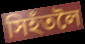
সিহঁতলৈ